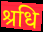
श्रधि